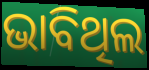
ଭାବିଥିଲ